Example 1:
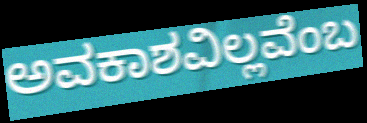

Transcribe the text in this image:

ಅವಕಾಶವಿಲ್ಲವೆಂಬ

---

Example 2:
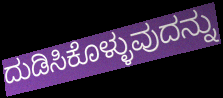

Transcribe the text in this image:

ದುಡಿಸಿಕೊಳ್ಳುವುದನ್ನು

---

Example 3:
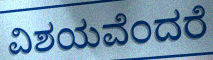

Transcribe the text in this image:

ವಿಶಯವೆಂದರೆ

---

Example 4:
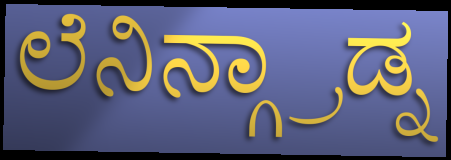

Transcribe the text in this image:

ಲೆನಿನ್ಗ್ರಾಡ್ನ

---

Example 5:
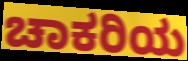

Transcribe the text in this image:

ಚಾಕರಿಯ